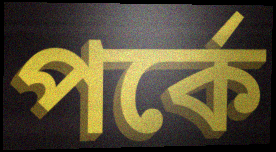
পর্কে